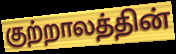
குற்றாலத்தின்